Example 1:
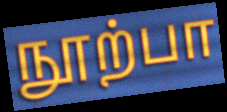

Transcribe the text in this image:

நூற்பா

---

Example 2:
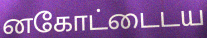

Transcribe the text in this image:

னகோட்டைடய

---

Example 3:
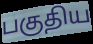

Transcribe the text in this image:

பகுதிய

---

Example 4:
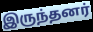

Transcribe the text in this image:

இருந்தனர்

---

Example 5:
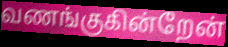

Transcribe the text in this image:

வணங்குகின்றேன்